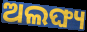
ଅଲଙ୍ଘ୍ୟ